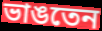
ভাঙতেন